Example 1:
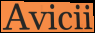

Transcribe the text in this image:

Avicii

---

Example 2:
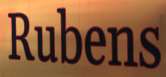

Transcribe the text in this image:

Rubens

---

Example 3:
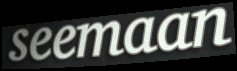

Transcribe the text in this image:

seemaan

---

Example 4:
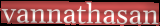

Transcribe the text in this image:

vannathasan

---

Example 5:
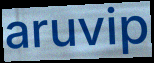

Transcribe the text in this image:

aruvip